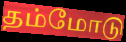
தம்மோடு